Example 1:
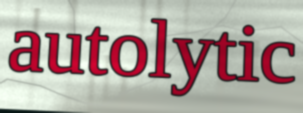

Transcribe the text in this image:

autolytic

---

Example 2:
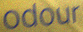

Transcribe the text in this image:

odour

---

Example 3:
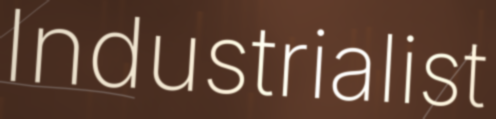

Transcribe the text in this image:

Industrialist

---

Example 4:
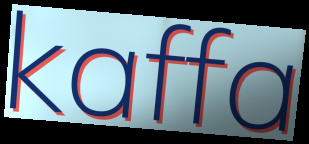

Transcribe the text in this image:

kaffa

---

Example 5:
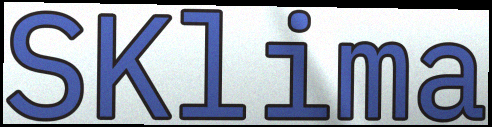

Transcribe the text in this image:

SKlima